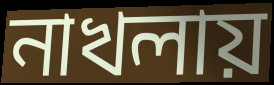
নাখলায়